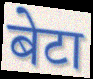
बेटा